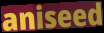
aniseed